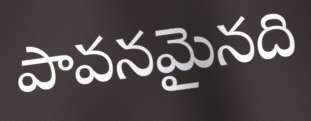
పావనమైనది